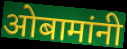
ओबामांनी